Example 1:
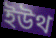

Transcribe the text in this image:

ইউথ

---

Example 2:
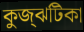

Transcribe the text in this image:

কুজ্‌ঝটিকা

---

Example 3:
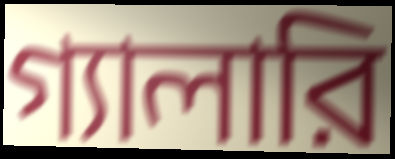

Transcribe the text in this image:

গ্যালারি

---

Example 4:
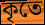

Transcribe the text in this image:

কৃতে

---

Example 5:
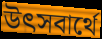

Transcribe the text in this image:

উৎসবার্থে